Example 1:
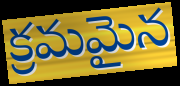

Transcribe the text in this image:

క్రమమైన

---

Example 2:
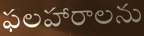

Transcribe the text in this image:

ఫలహారాలను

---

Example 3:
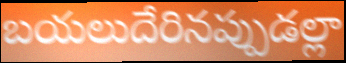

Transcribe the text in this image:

బయలుదేరినప్పుడల్లా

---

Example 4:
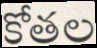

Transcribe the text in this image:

కోతల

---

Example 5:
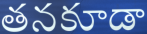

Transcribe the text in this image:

తనకూడా